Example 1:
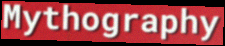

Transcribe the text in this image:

Mythography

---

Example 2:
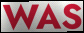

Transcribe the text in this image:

WAS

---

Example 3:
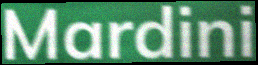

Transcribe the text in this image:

Mardini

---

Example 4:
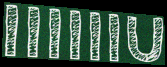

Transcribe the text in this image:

IIIIIIU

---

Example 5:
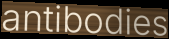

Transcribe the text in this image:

antibodies